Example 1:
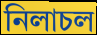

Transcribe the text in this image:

নিলাচল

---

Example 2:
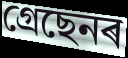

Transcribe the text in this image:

গ্ৰেছেনৰ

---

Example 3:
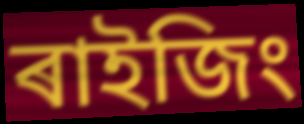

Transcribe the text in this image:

ৰাইজিং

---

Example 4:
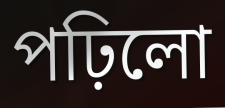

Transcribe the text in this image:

পঢ়িলো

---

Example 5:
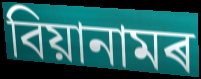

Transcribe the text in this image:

বিয়ানামৰ